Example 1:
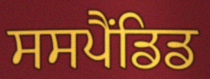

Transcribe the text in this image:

ਸਸਪੈਂਡਿਡ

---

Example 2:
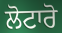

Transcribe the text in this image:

ਲੋਟਾਰੋ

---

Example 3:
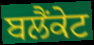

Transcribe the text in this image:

ਬਲੈਂਕੇਟ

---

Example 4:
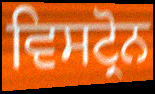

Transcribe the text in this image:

ਵਿਸਟ੍ਰੋਨ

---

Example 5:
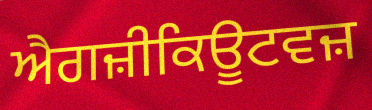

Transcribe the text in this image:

ਐਗਜ਼ੀਕਿਊਟਵਜ਼